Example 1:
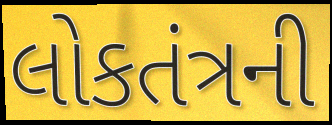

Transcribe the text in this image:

લોકતંત્રની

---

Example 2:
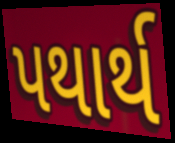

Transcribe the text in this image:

પથાર્થ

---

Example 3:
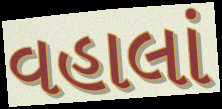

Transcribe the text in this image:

વહાલાં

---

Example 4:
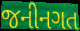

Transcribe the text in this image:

જનીનગત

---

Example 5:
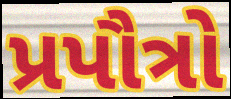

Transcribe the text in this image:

પ્રપૌત્રો